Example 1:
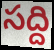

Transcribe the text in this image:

సద్ది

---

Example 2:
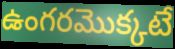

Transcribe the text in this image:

ఉంగరమొక్కటే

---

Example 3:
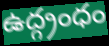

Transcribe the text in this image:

ఉద్గ్రంధం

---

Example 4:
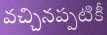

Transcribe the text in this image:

వచ్చినప్పటికీ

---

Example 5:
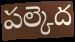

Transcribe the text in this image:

పల్కెద